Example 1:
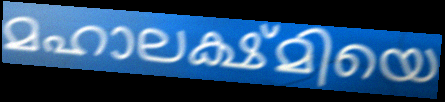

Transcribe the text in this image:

മഹാലക്ഷ്മിയെ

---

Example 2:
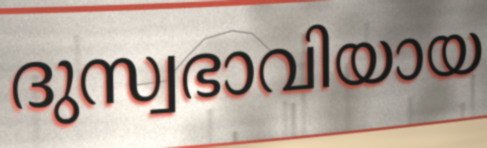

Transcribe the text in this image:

ദുസ്വഭാവിയായ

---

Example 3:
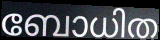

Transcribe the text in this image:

ബോധിത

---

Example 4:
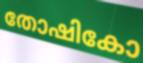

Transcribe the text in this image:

തോഷികോ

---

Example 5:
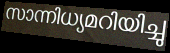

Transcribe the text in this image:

സാന്നിധ്യമറിയിച്ചു